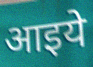
आइये